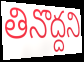
తినొద్దని